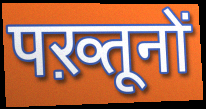
पख़्तूनों